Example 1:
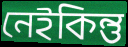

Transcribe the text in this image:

নেইকিন্তু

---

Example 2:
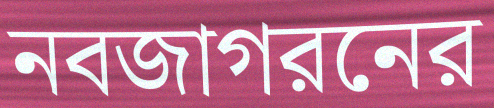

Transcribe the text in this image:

নবজাগরনের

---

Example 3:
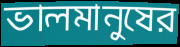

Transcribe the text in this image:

ভালমানুষের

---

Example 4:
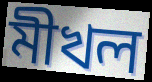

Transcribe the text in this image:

মীখল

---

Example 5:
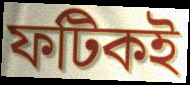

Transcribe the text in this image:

ফটিকই